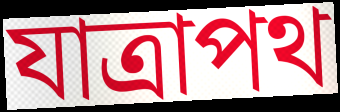
যাত্রাপথ